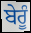
ਬੇਰੂੰ